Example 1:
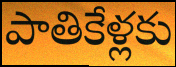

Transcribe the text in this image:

పాతికేళ్లకు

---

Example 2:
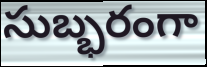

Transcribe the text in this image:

సుబ్భరంగా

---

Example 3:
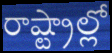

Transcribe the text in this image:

రాష్ట్రాల్లో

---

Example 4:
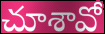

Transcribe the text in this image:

చూశావో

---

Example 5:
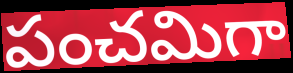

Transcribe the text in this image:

పంచమిగా